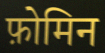
फ़ोमिन